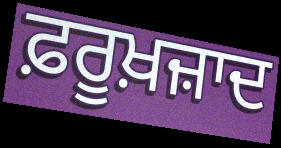
ਫ਼ਰੂਖ਼ਜ਼ਾਦ